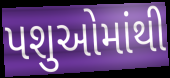
પશુઓમાંથી